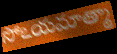
సోఽయమాత్మా